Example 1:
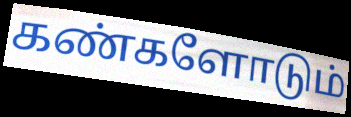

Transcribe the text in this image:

கண்களோடும்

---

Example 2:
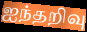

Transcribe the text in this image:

ஐந்தறிவு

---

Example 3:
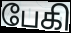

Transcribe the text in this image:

பேகி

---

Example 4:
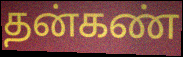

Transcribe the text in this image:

தன்கண்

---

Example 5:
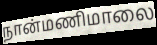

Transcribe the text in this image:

நான்மணிமாலை